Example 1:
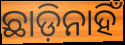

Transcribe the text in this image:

ଛାଡ଼ିନାହିଁ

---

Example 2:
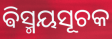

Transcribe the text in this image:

ଵିସ୍ମୟସୂଚକ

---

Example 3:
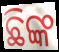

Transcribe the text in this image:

ଛିଙ୍କ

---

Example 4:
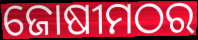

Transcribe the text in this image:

ଜୋଷୀମଠର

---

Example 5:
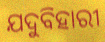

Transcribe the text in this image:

ଯଦୁବିହାରୀ